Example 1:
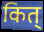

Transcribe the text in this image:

कित्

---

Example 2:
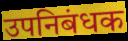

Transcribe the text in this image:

उपनिबंधक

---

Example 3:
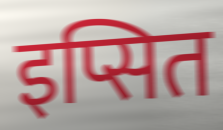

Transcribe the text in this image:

इप्सित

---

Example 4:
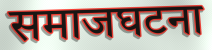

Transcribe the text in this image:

समाजघटना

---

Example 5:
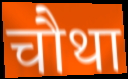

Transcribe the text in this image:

चौथा